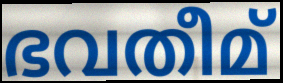
ഭവതീമ്